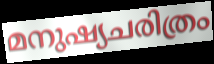
മനുഷ്യചരിത്രം